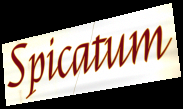
Spicatum